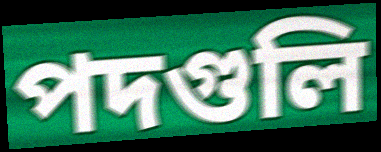
পদগুলি